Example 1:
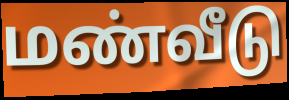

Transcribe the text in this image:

மண்வீடு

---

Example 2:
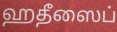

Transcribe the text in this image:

ஹதீஸைப்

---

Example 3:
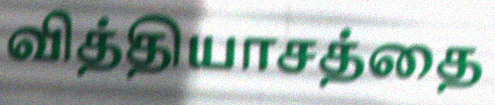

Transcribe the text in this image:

வித்தியாசத்தை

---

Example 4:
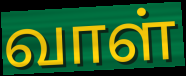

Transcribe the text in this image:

வாள்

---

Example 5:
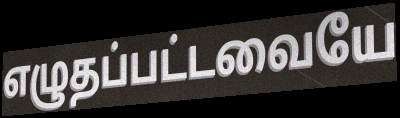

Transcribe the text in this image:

எழுதப்பட்டவையே